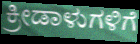
ಕ್ರೀಡಾಳುಗಳಿಗೆ